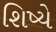
શિષ્યે